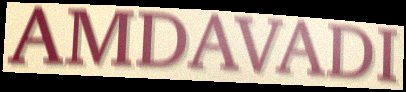
AMDAVADI